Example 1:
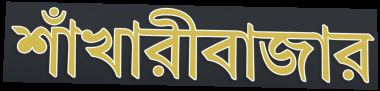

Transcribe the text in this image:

শাঁখারীবাজার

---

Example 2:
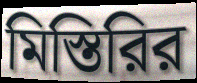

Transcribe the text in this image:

মিস্তিরির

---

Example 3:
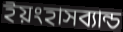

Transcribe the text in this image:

ইয়ংহাসব্যান্ড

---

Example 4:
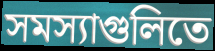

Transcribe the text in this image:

সমস্যাগুলিতে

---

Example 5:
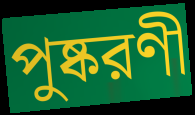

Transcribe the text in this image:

পুষ্করণী